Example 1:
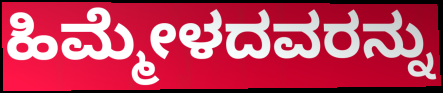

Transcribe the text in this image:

ಹಿಮ್ಮೇಳದವರನ್ನು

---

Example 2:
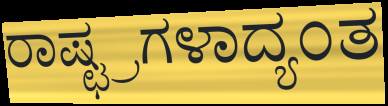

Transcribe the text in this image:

ರಾಷ್ಟ್ರಗಳಾದ್ಯಂತ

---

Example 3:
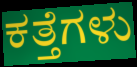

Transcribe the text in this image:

ಕತ್ತೆಗಳು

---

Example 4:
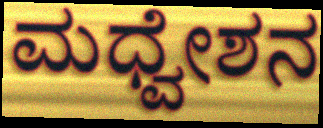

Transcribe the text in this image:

ಮಧ್ವೇಶನ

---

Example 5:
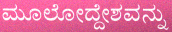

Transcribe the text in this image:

ಮೂಲೋದ್ದೇಶವನ್ನು